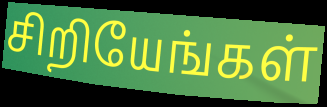
சிறியேங்கள்